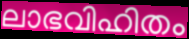
ലാഭവിഹിതം